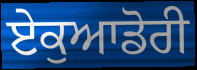
ਏਕੁਆਡੋਰੀ